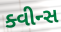
ક્વીન્સ